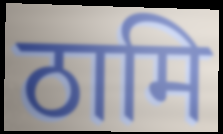
ठामि